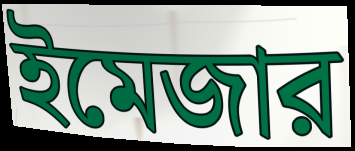
ইমেজার